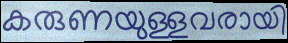
കരുണയുള്ളവരായി